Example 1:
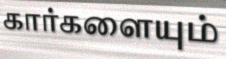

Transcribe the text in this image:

கார்களையும்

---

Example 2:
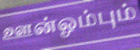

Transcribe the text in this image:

ஊன்ஓம்பும்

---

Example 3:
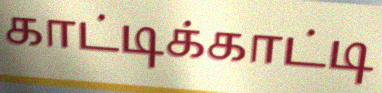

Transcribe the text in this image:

காட்டிக்காட்டி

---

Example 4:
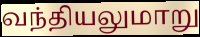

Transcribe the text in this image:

வந்தியலுமாறு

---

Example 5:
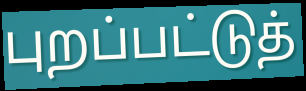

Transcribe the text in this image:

புறப்பட்டுத்